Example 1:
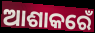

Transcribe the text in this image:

ଆଶାକରେଁ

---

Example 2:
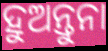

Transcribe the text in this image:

ହୁଅନ୍ତୁନା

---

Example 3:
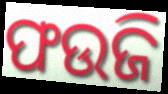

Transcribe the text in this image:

ଫଉଜି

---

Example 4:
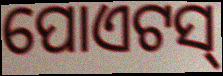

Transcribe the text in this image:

ପୋଏଟସ୍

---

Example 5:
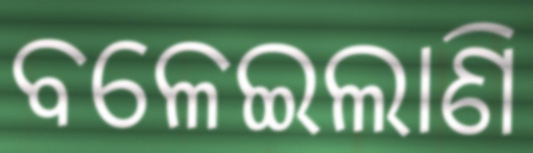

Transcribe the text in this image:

ବଳେଇଲାଣି